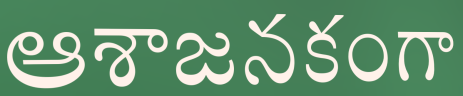
ఆశాజనకంగా